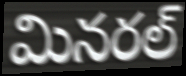
మినరల్